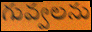
గువ్వలను